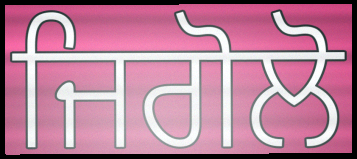
ਜਿਗੋਲੋ